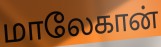
மாலேகான்